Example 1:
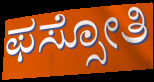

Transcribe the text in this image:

ಫಸ್ಸೋತಿ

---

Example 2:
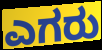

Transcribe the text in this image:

ಎಗರು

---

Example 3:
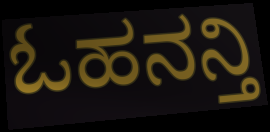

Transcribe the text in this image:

ಓಹನನ್ತಿ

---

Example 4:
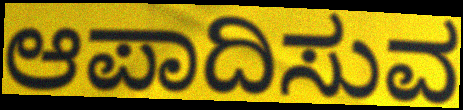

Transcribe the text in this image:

ಆಪಾದಿಸುವ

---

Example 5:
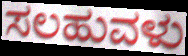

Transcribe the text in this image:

ಸಲಹುವಳು